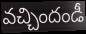
వచ్చిందండీ